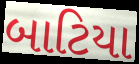
બાટિયા